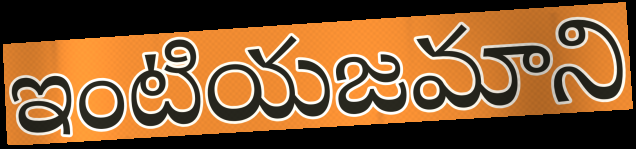
ఇంటియజమాని